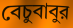
বেচুবাবুর